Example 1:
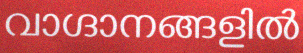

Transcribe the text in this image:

വാഗ്ദാനങ്ങളിൽ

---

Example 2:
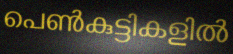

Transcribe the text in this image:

പെൺകുട്ടികളിൽ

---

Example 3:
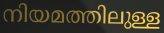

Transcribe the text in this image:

നിയമത്തിലുള്ള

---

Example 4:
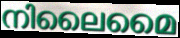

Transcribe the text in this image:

നിലൈമൈ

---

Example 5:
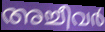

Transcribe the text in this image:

അച്ചീവർ